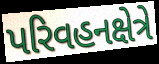
પરિવહનક્ષેત્રે